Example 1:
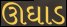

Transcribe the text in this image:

ઊઘાડ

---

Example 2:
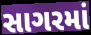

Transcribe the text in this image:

સાગરમાં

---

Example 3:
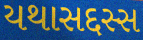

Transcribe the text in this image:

યથાસદ્દસ્સ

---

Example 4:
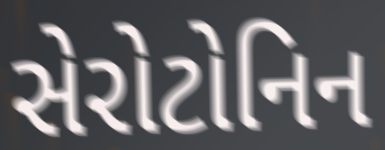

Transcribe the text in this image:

સેરોટોનિન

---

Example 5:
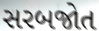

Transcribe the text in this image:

સરબજોત